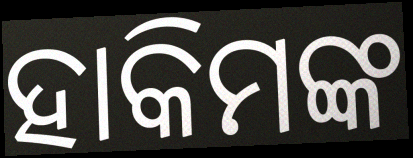
ହାକିମଙ୍କ